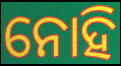
ନୋହି